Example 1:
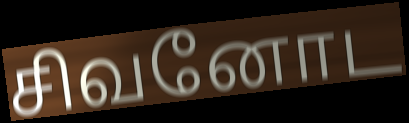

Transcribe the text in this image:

சிவனோட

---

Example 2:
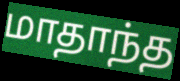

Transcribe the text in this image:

மாதாந்த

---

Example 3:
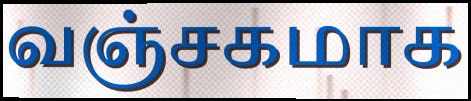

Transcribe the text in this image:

வஞ்சகமாக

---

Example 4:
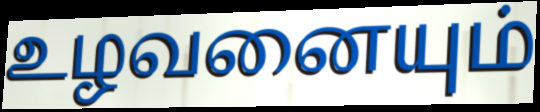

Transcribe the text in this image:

உழவனையும்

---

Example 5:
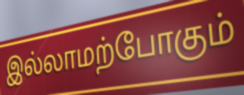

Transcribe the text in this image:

இல்லாமற்போகும்